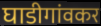
घाडीगांवकर